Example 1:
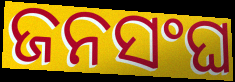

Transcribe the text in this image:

ଜନସଂଘ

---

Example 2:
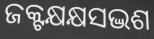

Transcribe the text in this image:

ଜକ୍ଟକ୍ଷକ୍ଷସଦ୍ଭଶ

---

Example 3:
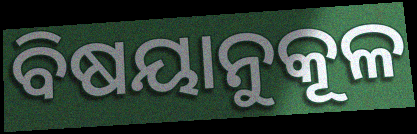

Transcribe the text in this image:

ବିଷୟାନୁକୂଳ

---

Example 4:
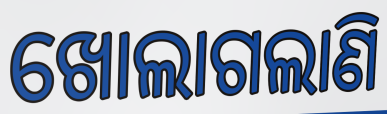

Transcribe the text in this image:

ଖୋଲାଗଲାଣି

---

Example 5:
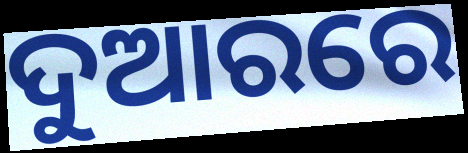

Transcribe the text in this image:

ଦୁଆରରେ